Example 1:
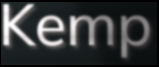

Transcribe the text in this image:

Kemp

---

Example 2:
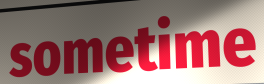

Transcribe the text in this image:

sometime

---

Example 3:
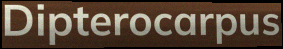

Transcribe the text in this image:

Dipterocarpus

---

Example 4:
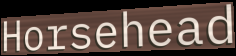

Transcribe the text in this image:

Horsehead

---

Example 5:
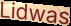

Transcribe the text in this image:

Lidwas